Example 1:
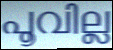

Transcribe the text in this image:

പൂവില്ല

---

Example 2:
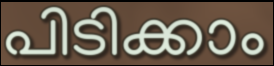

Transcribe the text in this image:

പിടിക്കാം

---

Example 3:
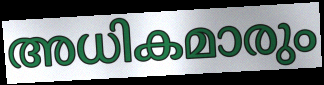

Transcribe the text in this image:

അധികമാരും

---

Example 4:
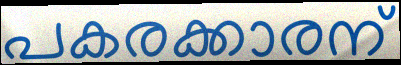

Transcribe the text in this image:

പകരക്കാരന്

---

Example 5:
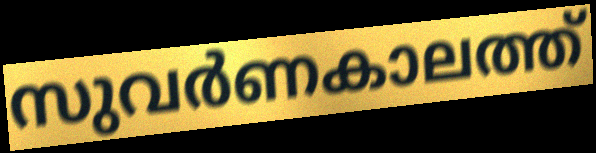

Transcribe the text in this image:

സുവർണകാലത്ത്